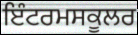
ਇੰਟਰਮਸਕੂਲਰ